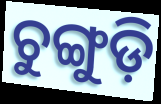
ଚୁଙ୍ଗୁଡ଼ି